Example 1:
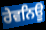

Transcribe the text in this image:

ਰੇਵਨਿਊ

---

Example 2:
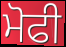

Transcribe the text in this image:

ਮੋਫੀ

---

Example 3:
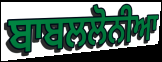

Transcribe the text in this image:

ਬਾਬਲਲੋਨੀਆ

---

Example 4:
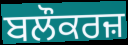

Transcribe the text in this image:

ਬਲੌਕਰਜ਼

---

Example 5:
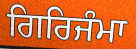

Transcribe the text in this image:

ਗਿਰਿਜੰਮਾ